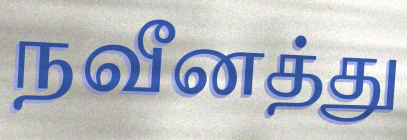
நவீனத்து